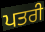
ਪਤਰੀ